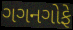
ગગનગોફે